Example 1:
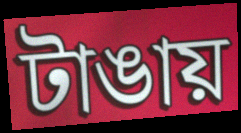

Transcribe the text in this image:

টাঙায়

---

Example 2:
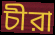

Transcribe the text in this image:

চীরা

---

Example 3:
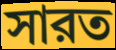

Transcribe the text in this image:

সারত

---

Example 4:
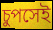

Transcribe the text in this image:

চুপসেই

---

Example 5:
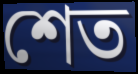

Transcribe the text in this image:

শেত